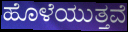
ಹೊಳೆಯುತ್ತವೆ